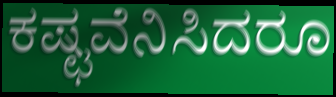
ಕಷ್ಟವೆನಿಸಿದರೂ